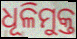
ଧୂଳିମୁକ୍ତ